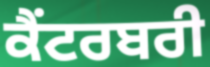
ਕੈਂਟਰਬਰੀ